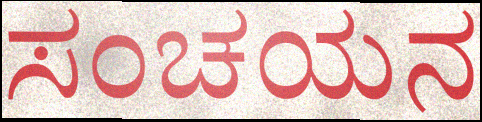
ಸಂಚಯನ